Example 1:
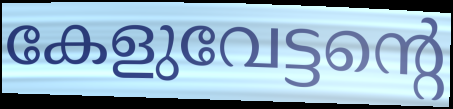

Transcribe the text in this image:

കേളുവേട്ടന്റെ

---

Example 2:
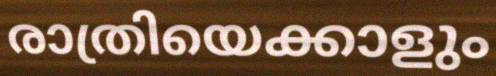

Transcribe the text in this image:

രാത്രിയെക്കാളും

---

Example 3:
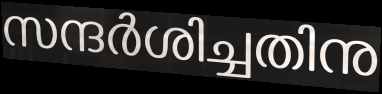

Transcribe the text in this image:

സന്ദർശിച്ചതിനു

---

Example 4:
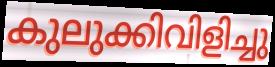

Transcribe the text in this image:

കുലുക്കിവിളിച്ചു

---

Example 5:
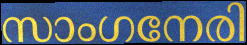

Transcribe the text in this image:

സാംഗനേരി